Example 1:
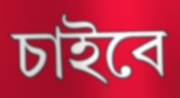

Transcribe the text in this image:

চাইবে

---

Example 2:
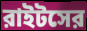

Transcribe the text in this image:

রাইটসের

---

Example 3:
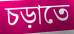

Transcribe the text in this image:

চড়াতে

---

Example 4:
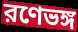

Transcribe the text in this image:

রণেভঙ্গ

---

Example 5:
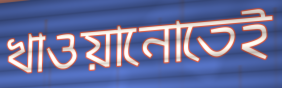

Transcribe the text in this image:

খাওয়ানোতেই